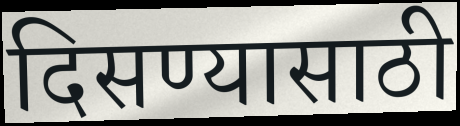
दिसण्यासाठी